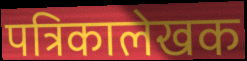
पत्रिकालेखक